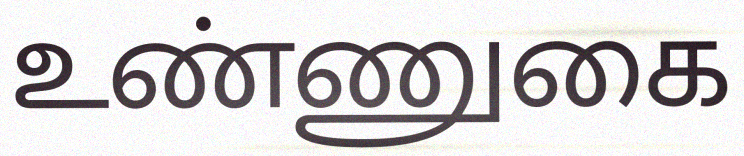
உண்ணுகை